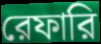
রেফারি